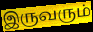
இருவரும்